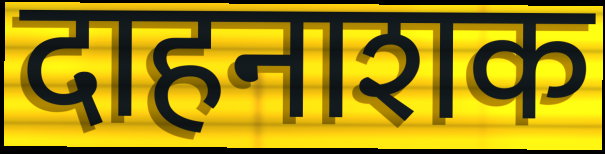
दाहनाशक